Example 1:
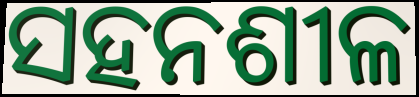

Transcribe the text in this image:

ସହନଶୀଳ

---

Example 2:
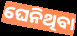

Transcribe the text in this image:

ଘେନିଥିବା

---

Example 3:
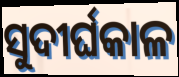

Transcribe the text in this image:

ସୁଦୀର୍ଘକାଳ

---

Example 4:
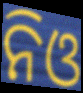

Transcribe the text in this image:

ନିଓ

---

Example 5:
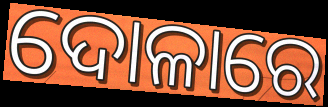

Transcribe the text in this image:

ଦୋଳାରେ